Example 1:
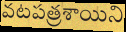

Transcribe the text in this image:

వటపత్రశాయిని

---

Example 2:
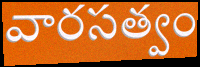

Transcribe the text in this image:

వారసత్వం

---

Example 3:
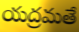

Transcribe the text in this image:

యద్రమతే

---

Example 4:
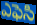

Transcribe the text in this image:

ఎఫెసి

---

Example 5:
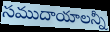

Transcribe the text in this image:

సముదాయాలన్నీ